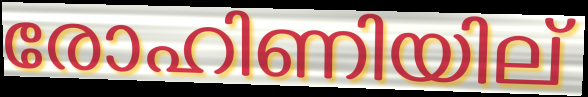
രോഹിണിയില്